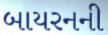
બાયરનની